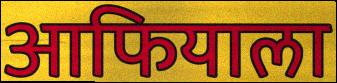
आफियाला